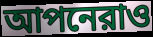
আপনেরাও